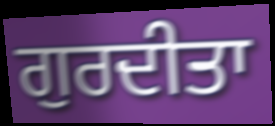
ਗੁਰਦੀਤਾ